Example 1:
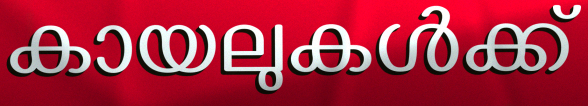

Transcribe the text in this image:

കായലുകൾക്ക്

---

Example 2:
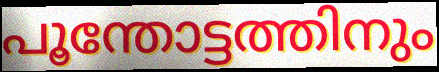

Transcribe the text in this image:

പൂന്തോട്ടത്തിനും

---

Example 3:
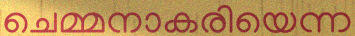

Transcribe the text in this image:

ചെമ്മനാകരിയെന്ന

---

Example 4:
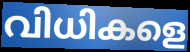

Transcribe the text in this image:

വിധികളെ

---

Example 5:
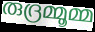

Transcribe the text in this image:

രുദ്രമ്മൂമ്മ